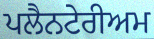
ਪਲੈਨਟੇਰੀਅਮ